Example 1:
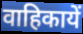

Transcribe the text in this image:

वाहिकायें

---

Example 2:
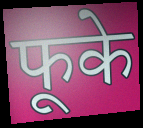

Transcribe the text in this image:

फूके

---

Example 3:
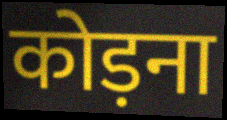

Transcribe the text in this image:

कोड़ना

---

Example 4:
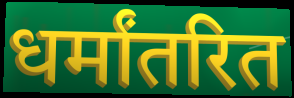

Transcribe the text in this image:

धर्मांतरित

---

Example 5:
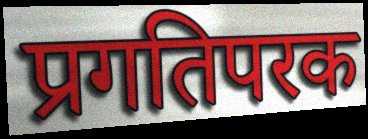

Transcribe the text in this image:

प्रगतिपरक